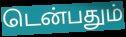
டென்பதும்